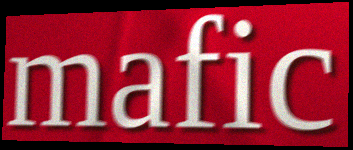
mafic